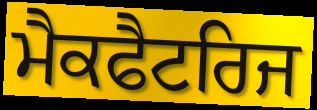
ਮੈਕਫੈਟਰਿਜ